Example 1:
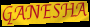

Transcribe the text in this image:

GANESHA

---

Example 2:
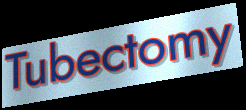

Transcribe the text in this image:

Tubectomy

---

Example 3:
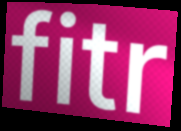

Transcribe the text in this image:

fitr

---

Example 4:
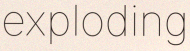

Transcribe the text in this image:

exploding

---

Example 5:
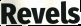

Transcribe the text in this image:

Revels